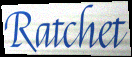
Ratchet